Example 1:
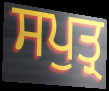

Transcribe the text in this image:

ਸਪੁਤ੍ਰ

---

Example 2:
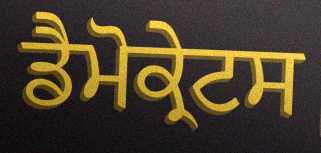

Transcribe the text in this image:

ਡੈਮੋਕ੍ਰੇਟਸ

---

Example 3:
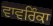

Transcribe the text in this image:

ਵਾਵਰਿੰਕਾ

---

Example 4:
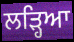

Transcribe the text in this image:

ਲੜ੍ਹਿਆ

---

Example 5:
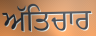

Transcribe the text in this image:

ਅੱਤਿਚਾਰ